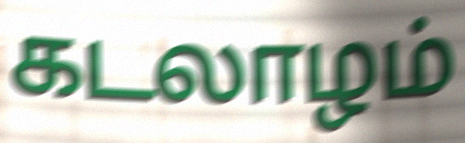
கடலாழம்